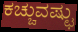
ಕಚ್ಚುವಷ್ಟು